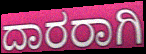
ದಾರರಾಗಿ